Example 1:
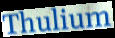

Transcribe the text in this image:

Thulium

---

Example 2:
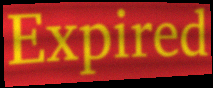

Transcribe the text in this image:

Expired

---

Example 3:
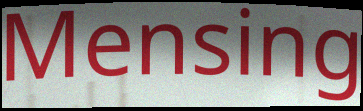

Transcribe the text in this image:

Mensing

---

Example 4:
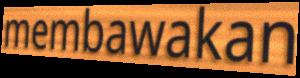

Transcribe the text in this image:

membawakan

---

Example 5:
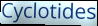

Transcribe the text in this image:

Cyclotides